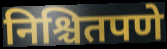
निश्चितपणे